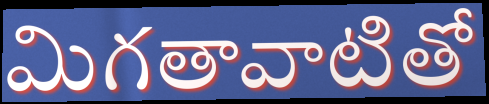
మిగతావాటితో